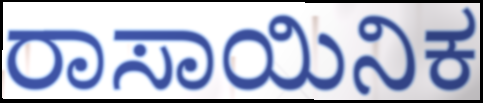
ರಾಸಾಯಿನಿಕ